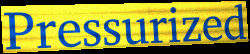
Pressurized